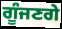
ਗੂੰਜਣਗੇ